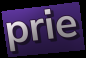
prie